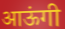
आऊंगी